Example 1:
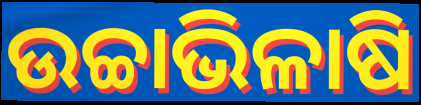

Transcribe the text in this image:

ଉଚ୍ଚାଭିଳାଷି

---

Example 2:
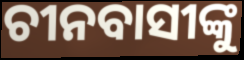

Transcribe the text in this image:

ଚୀନବାସୀଙ୍କୁ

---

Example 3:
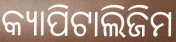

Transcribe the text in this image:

କ୍ୟାପିଟାଲିଜିମ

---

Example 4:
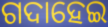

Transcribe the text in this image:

ଗଦାହେଇ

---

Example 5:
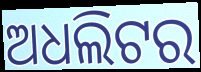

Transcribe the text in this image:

ଅଧଲିଟର